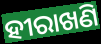
ହୀରାଖଣି